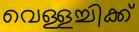
വെള്ളച്ചിക്ക്